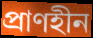
প্ৰাণহীন